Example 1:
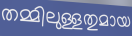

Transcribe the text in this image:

തമ്മിലുള്ളതുമായ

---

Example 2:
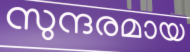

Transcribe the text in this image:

സുന്ദരമായ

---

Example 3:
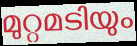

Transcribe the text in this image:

മുറ്റമടിയും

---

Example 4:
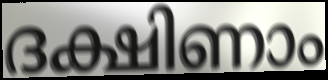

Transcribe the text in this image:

ദക്ഷിണാം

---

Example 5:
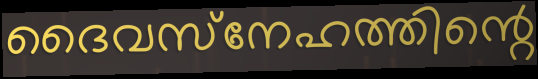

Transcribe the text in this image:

ദൈവസ്‌നേഹത്തിന്റെ